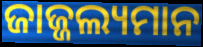
ଜାଜ୍ଜଲ୍ୟମାନ